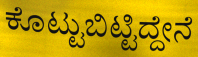
ಕೊಟ್ಟುಬಿಟ್ಟಿದ್ದೇನೆ